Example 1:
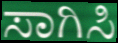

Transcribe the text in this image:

ಸಾಗಿಸಿ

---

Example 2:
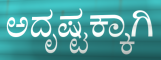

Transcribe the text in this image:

ಅದೃಷ್ಟಕ್ಕಾಗಿ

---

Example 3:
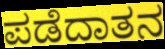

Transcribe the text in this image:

ಪಡೆದಾತನ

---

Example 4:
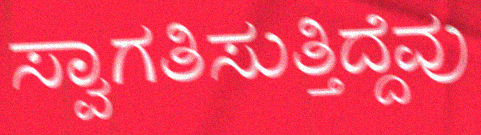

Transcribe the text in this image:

ಸ್ವಾಗತಿಸುತ್ತಿದ್ದೆವು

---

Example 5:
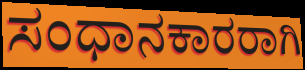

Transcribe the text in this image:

ಸಂಧಾನಕಾರರಾಗಿ